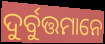
ଦୁର୍ବୁତ୍ତମାନେ